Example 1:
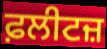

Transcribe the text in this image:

ਫ਼ਲੀਟਜ਼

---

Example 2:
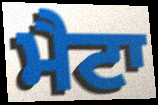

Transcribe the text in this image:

ਮੈਟਾ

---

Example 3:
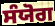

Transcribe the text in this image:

ਸੰਯੋਗ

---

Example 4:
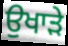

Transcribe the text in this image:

ਉਖਾੜੇ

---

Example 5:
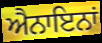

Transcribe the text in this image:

ਐਨਾਇਨਾਂ